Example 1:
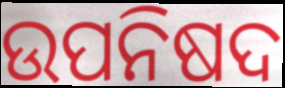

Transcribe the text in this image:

ଉପନିଷଦ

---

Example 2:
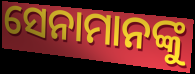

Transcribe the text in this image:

ସେନାମାନଙ୍କୁ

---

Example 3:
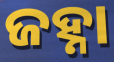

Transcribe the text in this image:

ଜହ୍ନା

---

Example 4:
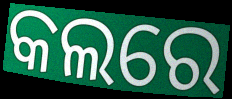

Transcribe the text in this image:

କଲରେ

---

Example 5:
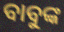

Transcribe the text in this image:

ବାବୁଙ୍କ